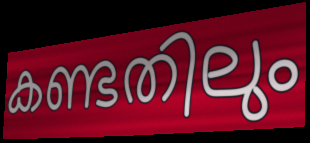
കണ്ടതിലും